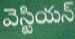
వెస్టియన్